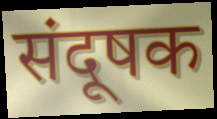
संदूषक